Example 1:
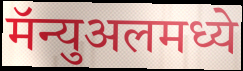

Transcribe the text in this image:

मॅन्युअलमध्ये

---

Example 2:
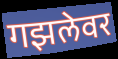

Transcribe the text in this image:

गझलेवर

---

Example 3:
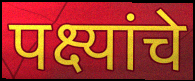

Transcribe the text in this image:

पक्ष्यांचे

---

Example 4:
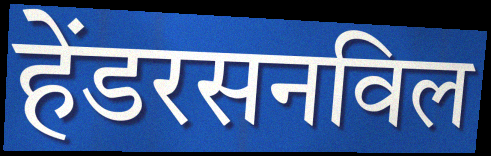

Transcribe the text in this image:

हेंडरसनविल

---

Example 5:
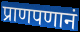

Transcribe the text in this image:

प्राणपणानं